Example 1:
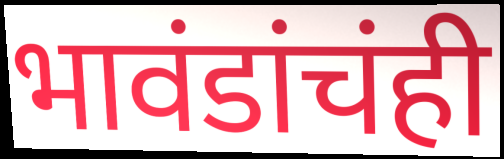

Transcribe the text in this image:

भावंडांचंही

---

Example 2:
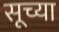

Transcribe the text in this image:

सूच्या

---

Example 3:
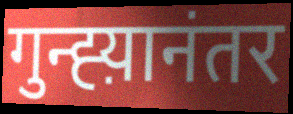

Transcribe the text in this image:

गुन्ह्य़ानंतर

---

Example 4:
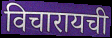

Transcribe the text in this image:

विचारायची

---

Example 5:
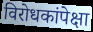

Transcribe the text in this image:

विरोधकांपेक्षा